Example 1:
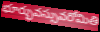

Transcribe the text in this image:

భూర్భువస్సువరోమితి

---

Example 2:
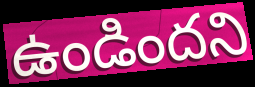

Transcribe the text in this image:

ఉండిందని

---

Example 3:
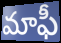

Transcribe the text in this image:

మాఫీ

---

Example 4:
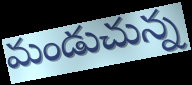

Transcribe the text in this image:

మండుచున్న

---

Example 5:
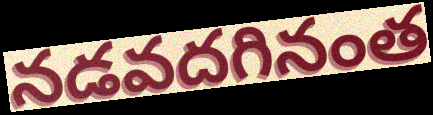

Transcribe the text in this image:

నడవదగినంత